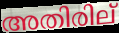
അതിരില്